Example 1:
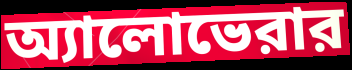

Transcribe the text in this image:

অ্যালোভেরার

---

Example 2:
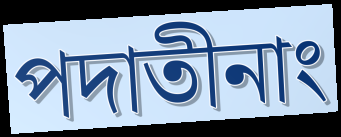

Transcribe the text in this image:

পদাতীনাং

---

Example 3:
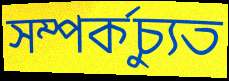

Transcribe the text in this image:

সম্পর্কচ্যুত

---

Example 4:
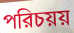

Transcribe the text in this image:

পরিচয়য়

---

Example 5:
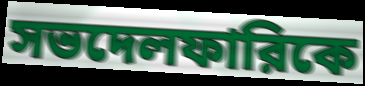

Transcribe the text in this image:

সভদেলফারিকে